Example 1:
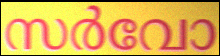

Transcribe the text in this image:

സർവോ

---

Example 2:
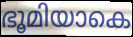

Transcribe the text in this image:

ഭൂമിയാകെ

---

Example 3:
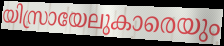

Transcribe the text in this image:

യിസ്രായേലുകാരെയും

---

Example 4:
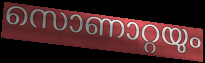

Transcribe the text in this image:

സൊണാറ്റയും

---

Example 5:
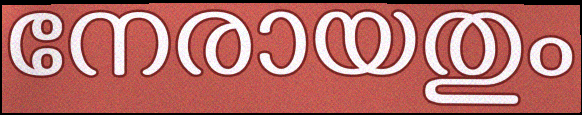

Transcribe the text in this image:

നേരായതും